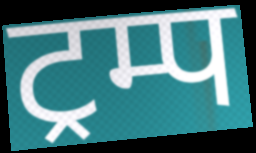
ट्रम्‍प